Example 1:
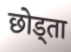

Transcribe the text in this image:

छोड्ता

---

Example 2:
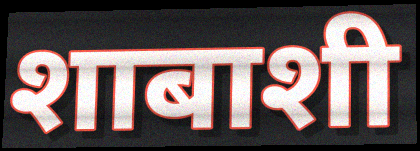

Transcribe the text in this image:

शाबाशी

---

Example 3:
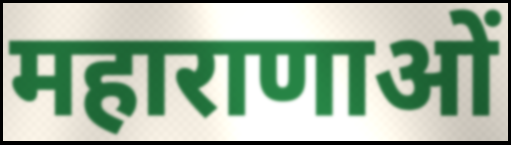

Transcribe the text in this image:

महाराणाओं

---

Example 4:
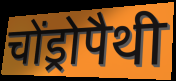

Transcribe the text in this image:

चोंड्रोपैथी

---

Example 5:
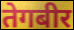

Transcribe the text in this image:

तेगबीर